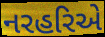
નરહરિએ